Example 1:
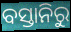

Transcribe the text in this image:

ବସ୍ତାନିରୁ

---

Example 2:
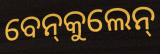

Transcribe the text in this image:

ବେନ୍‍କୁଲେନ୍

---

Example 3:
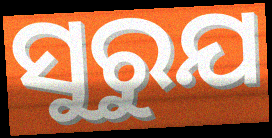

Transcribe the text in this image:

ସୁରୁଯ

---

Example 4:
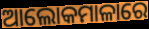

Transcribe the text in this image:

ଆଲୋକମାଳାରେ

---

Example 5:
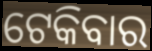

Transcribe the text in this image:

ଟେକିବାର